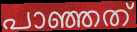
പാഞ്ഞത്